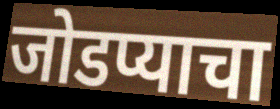
जोडप्याचा